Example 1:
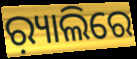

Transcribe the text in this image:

ର଼୍ୟାଲିରେ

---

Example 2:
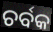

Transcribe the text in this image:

ଚର୍ବକ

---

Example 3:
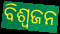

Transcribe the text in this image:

ବିଶ୍ଵଜନ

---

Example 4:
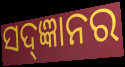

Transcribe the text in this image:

ସଦ୍‌ଜ୍ଞାନର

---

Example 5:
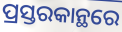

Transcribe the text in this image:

ପ୍ରସ୍ତରକାନ୍ଥରେ